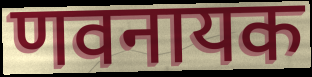
णवनायक